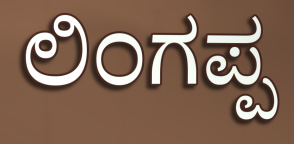
ಲಿಂಗಪ್ಪ